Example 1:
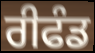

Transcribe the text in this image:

ਰੀਫੰਡ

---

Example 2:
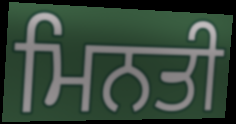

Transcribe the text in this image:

ਮਿਨਤੀ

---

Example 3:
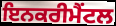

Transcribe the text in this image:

ਇਨਕਰੀਮੈਂਟਲ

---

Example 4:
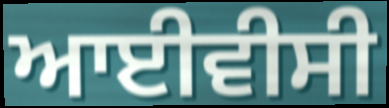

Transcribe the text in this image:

ਆਈਵੀਸੀ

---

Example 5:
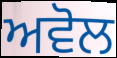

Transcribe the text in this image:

ਅਵੋਲ